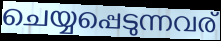
ചെയ്യപ്പെടുന്നവര്